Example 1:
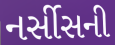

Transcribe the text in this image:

નર્સીસની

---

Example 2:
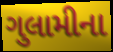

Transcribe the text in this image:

ગુલામીના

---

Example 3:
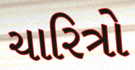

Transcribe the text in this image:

ચારિત્રો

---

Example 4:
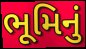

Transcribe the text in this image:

ભૂમિનું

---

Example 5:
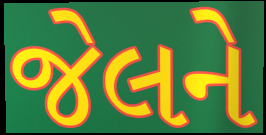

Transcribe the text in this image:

જેલને